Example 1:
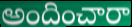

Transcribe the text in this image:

అందించారా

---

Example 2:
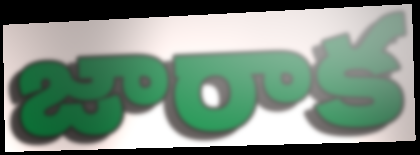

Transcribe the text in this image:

జారాక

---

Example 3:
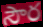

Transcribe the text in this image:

సౌర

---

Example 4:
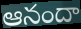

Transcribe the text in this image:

ఆనందా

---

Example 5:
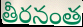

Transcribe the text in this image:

తీరనంత